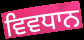
ਵਿਵਧਾਨ